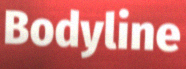
Bodyline